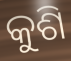
କୁଶି